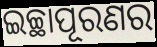
ଇଚ୍ଛାପୂରଣର